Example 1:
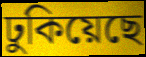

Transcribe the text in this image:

ঢুকিয়েছে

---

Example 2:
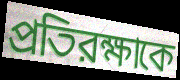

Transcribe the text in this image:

প্রতিরক্ষাকে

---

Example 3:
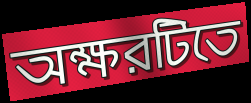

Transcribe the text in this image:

অক্ষরটিতে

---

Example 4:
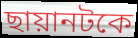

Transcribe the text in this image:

ছায়ানটকে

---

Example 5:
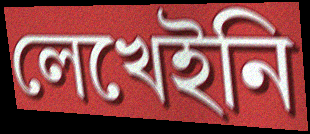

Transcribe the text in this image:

লেখেইনি